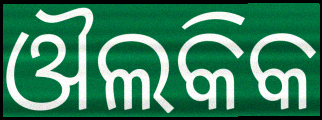
ଔଲକିକ